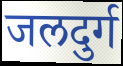
जलदुर्ग